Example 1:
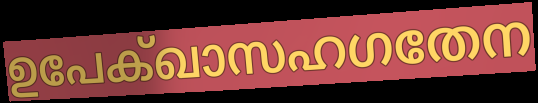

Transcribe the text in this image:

ഉപേക്ഖാസഹഗതേന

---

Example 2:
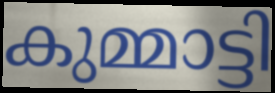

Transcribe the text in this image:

കുമ്മാട്ടി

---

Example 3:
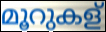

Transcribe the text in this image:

മൂറുകള്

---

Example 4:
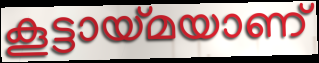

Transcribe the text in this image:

കൂട്ടായ്മയാണ്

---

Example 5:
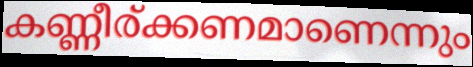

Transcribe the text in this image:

കണ്ണീര്ക്കണമാണെന്നും